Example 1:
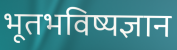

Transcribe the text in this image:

भूतभविष्यज्ञान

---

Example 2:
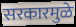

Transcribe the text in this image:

सरकारमुळे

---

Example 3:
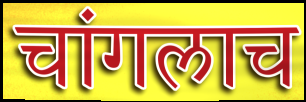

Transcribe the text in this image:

चांगलाच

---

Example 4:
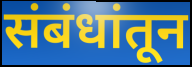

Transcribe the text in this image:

संबंधांतून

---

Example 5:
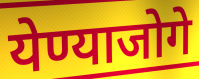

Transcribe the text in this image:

येण्याजोगे